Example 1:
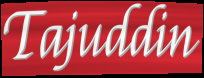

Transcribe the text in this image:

Tajuddin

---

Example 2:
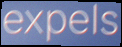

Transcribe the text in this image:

expels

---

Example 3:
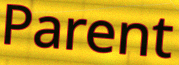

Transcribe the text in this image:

Parent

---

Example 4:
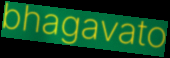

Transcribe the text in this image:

bhagavato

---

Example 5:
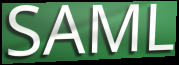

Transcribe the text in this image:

SAML